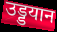
उड्डयान